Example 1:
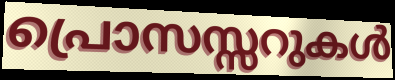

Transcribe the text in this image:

പ്രൊസസ്സറുകൾ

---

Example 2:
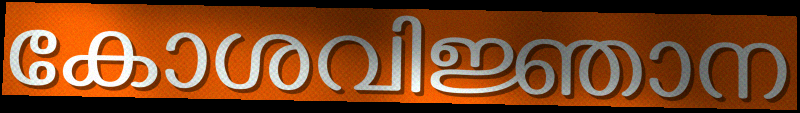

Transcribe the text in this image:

കോശവിജ്ഞാന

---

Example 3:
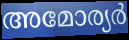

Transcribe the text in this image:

അമോര്യർ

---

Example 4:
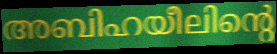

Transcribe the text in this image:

അബിഹയീലിന്റെ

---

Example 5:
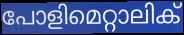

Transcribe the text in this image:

പോളിമെറ്റാലിക്